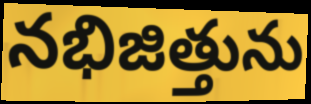
నభిజిత్తును